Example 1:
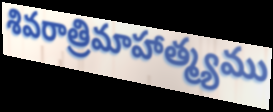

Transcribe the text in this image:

శివరాత్రిమాహాత్మ్యము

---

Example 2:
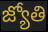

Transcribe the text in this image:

జ్యోతి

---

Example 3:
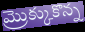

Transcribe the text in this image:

మ్రొక్కుకొన్న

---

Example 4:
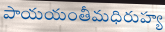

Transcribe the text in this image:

పాయయంతీమధిరుహ్య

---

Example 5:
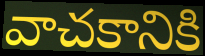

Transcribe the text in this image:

వాచకానికి